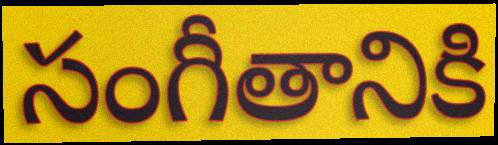
సంగీతానికి